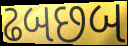
ઢબછબ